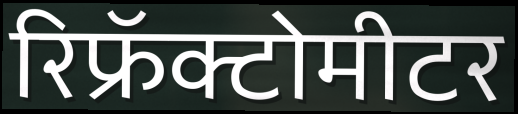
रिफ्रॅक्टोमीटर